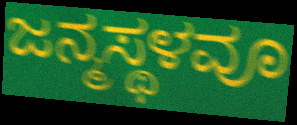
ಜನ್ಮಸ್ಥಳವೂ